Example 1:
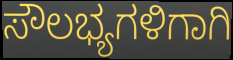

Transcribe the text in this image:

ಸೌಲಭ್ಯಗಳಿಗಾಗಿ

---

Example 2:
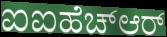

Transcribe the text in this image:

ಐಐಹೆಚ್ಆರ್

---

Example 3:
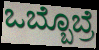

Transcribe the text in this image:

ಒಬ್ಬೊಬ್ರೆ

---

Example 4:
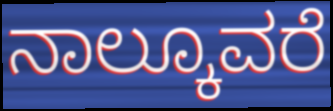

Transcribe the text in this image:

ನಾಲ್ಕೂವರೆ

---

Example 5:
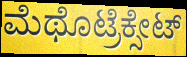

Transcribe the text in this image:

ಮೆಥೊಟ್ರೆಕ್ಸೇಟ್